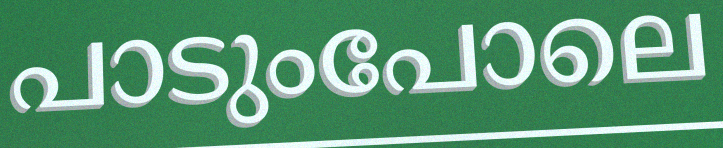
പാടുംപോലെ